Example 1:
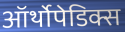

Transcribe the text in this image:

ऑर्थोपेडिक्स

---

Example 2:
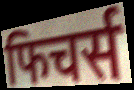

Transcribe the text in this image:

फिचर्स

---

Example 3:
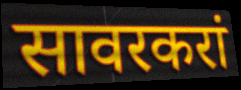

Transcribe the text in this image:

सावरकरां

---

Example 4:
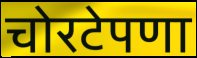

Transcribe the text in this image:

चोरटेपणा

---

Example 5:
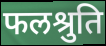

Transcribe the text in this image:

फलश्रुति